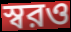
স্বরও